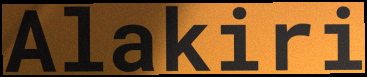
Alakiri